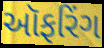
ઑફરિંગ